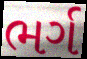
ભર્ગ